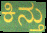
ಕಿನ್ತು